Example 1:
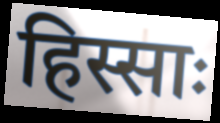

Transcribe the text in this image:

हिस्साः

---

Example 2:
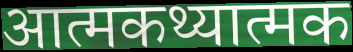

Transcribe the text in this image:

आत्मकथ्यात्मक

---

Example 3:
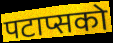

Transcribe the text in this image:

पटाप्सको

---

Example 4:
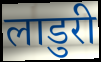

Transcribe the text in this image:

लाडुरी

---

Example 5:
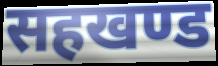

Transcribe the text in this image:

सहखण्ड